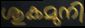
ശുകമുനി